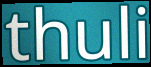
thuli